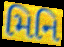
મિનિ